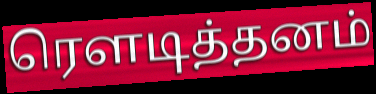
ரௌடித்தனம்